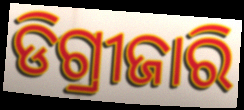
ଡିଗ୍ରୀଜାରି